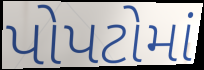
પોપટોમાં